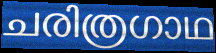
ചരിത്രഗാഥ